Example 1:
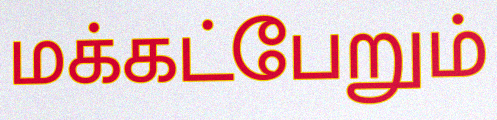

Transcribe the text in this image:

மக்கட்பேறும்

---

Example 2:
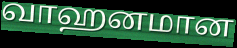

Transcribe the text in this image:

வாஹனமான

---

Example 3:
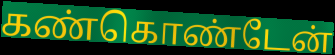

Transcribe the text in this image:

கண்கொண்டேன்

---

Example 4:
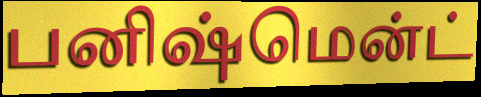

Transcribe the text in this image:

பனிஷ்மென்ட்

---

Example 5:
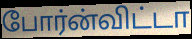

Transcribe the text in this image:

போர்ன்விட்டா